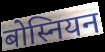
बोस्नियन